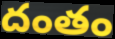
దంతం